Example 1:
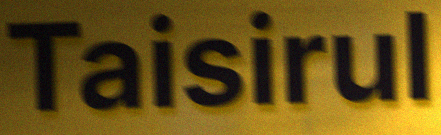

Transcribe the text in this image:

Taisirul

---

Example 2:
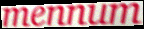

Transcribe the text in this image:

mennum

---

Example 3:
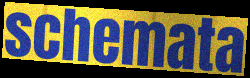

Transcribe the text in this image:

schemata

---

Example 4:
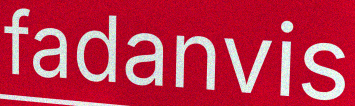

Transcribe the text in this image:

fadanvis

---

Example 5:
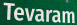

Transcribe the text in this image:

Tevaram